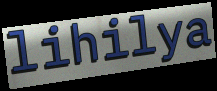
lihilya